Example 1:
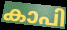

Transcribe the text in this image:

കാപി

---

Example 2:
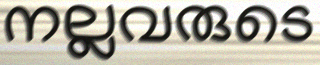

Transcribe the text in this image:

നല്ലവരുടെ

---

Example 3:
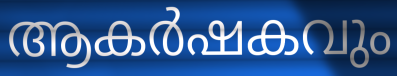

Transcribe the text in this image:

ആകർഷകവും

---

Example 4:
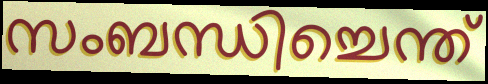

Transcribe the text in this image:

സംബന്ധിച്ചെന്ത്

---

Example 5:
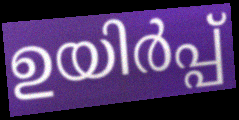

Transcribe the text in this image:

ഉയിർപ്പ്